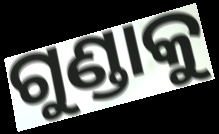
ଗୁଣ୍ଡାକୁ